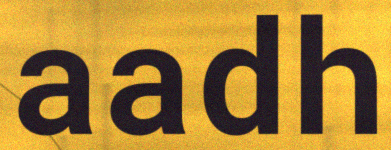
aadh